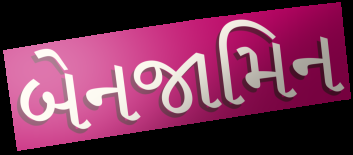
બેનજામિન